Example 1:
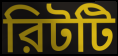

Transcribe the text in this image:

রিটটি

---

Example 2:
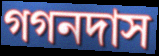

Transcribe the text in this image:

গগনদাস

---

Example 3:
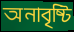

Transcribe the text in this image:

অনাবৃষ্টি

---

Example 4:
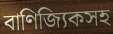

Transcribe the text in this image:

বাণিজ্যিকসহ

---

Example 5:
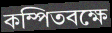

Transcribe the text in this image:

কম্পিতবক্ষে